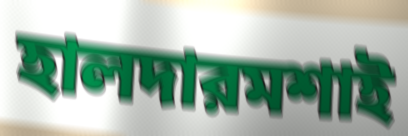
হালদারমশাই